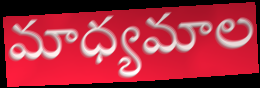
మాధ్యమాల